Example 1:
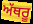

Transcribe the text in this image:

ਅੱਥਰੂ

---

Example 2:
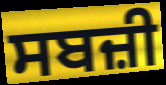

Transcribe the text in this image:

ਸਬਜ਼ੀ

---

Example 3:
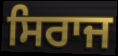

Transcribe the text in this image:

ਸਿਰਾਜ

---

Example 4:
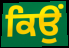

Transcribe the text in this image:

ਕਿਉਂ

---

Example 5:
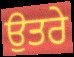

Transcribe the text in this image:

ਉਤਰੇ